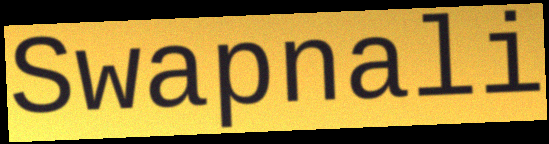
Swapnali